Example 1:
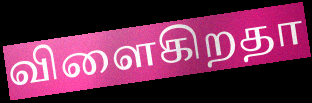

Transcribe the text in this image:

விளைகிறதா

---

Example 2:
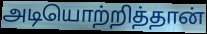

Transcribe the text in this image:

அடியொற்றித்தான்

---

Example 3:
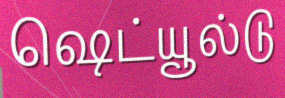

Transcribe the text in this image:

ஷெட்யூல்டு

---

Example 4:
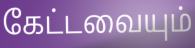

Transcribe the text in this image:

கேட்டவையும்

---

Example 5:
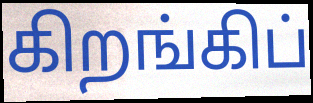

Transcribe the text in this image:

கிறங்கிப்